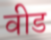
वीड